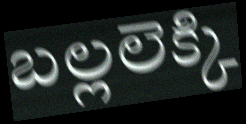
బల్లలెక్కి